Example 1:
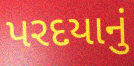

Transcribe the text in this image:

પરદયાનું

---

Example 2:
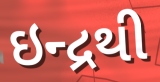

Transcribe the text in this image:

ઇન્દ્રથી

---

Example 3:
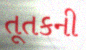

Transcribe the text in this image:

તૂતકની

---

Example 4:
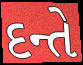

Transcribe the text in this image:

દન્તે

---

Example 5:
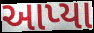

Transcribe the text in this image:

આપ્યા